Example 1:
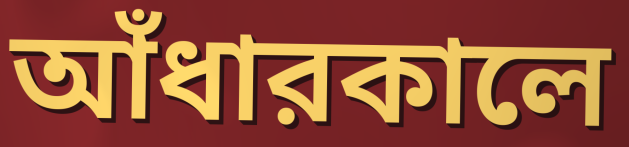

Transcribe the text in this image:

আঁধারকালে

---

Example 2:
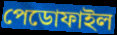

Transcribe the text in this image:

পেডোফাইল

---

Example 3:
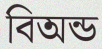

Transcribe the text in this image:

বিঅন্ড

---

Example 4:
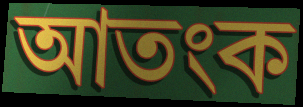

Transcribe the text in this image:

আতংক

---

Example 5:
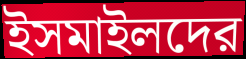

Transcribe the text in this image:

ইসমাইলদের